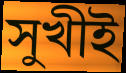
সুখীই